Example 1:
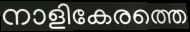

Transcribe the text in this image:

നാളികേരത്തെ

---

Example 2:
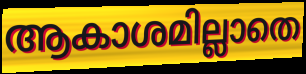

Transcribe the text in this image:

ആകാശമില്ലാതെ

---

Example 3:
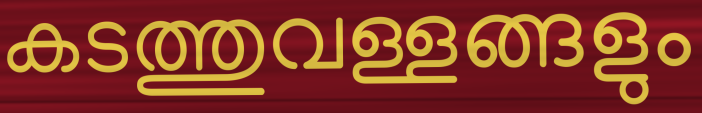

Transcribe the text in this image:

കടത്തുവള്ളങ്ങളും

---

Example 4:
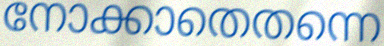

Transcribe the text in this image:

നോക്കാതെതന്നെ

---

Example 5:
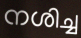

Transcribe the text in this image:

നശിച്ച